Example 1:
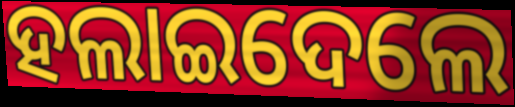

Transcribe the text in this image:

ହଲାଇଦେଲେ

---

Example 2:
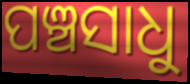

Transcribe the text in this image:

ପଞ୍ଚସାଧୁ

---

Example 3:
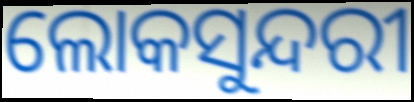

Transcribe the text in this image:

ଲୋକସୁନ୍ଦରୀ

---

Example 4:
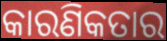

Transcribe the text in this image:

କାରଣିକତାର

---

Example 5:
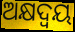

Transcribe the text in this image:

ଅକ୍ଷଦ୍ବୟ